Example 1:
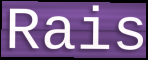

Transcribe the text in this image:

Rais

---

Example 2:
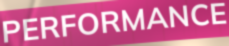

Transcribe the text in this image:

PERFORMANCE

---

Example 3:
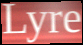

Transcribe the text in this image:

Lyre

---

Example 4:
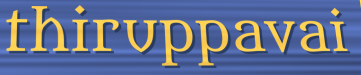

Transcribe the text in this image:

thiruppavai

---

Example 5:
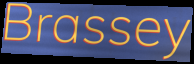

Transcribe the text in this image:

Brassey